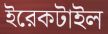
ইরেকটাইল